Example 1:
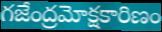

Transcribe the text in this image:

గజేంద్రమోక్షకారిణం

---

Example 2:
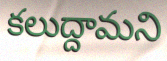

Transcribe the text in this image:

కలుద్దామని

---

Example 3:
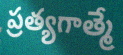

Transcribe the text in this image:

ప్రత్యగాత్మే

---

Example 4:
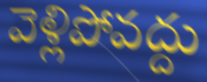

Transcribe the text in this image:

వెళ్లిపోవద్దు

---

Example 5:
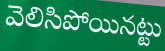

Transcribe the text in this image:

వెలిసిపోయినట్టు